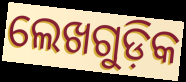
ଲେଖଗୁଡ଼ିକ